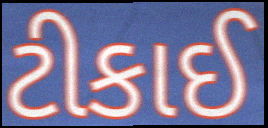
ટીકાઈ